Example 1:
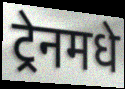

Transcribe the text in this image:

ट्रेनमधे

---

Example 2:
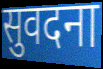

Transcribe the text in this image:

सुवदना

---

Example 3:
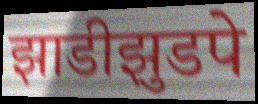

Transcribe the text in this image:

झाडीझुडपे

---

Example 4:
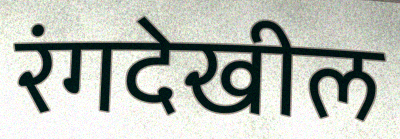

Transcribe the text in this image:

रंगदेखील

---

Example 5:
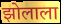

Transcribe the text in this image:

झोलाला